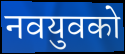
नवयुवको